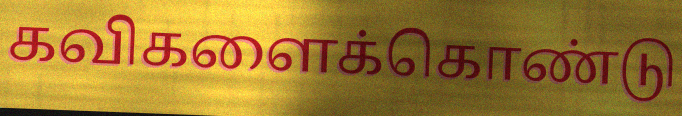
கவிகளைக்கொண்டு